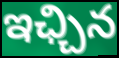
ఇఛ్చిన